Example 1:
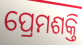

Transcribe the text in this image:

ପ୍ରେମଶକ୍ତି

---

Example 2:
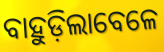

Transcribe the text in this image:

ବାହୁଡ଼ିଲାବେଳେ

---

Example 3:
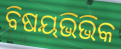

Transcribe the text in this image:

ବିଷୟଭିଭିକ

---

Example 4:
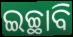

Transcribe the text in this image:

ଇଚ୍ଛାବି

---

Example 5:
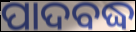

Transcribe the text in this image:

ପାଦବଦ୍ଧ